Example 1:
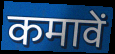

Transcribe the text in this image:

कमावें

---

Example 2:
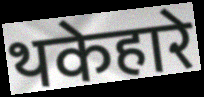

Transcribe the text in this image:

थकेहारे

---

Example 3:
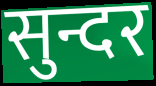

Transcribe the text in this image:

सुन्‍दर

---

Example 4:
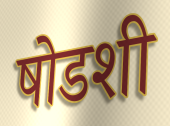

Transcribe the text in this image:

षोडशी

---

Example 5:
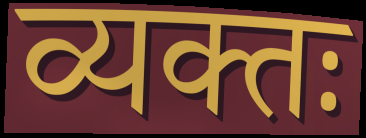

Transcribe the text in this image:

व्यक्तः